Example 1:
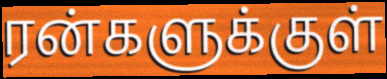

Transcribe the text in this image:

ரன்களுக்குள்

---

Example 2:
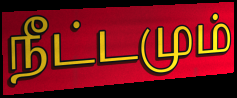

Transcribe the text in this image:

நீட்டமும்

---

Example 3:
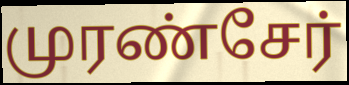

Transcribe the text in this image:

முரண்சேர்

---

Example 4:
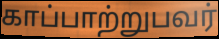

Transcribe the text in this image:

காப்பாற்றுபவர்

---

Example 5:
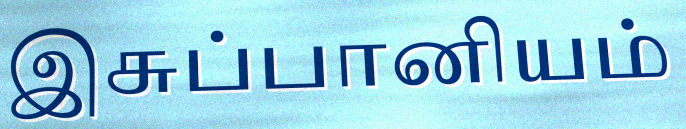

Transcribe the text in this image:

இசுப்பானியம்